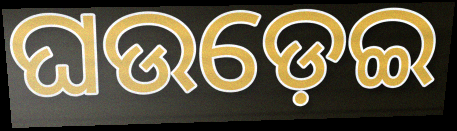
ଘଉଡ଼େଇ